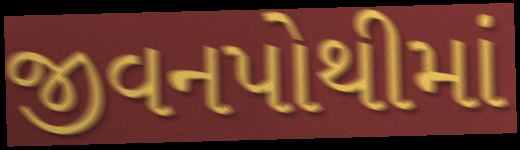
જીવનપોથીમાં